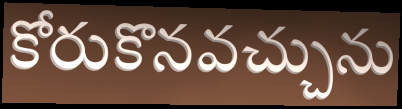
కోరుకొనవచ్చును